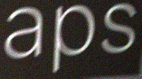
aps